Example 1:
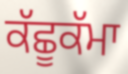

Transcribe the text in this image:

ਕੱਛੂਕੱਮਾ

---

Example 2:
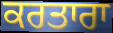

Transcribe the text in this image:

ਕਰਤਾਰਾ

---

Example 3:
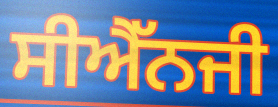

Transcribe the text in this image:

ਸੀਐੱਨਜੀ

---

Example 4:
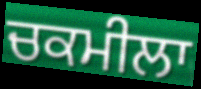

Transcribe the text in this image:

ਚਕਮੀਲਾ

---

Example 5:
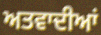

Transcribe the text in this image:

ਅਤਵਾਦੀਆਂ